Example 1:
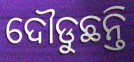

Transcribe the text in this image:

ଦୌଡୁଛନ୍ତି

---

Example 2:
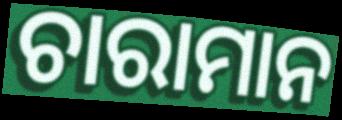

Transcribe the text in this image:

ଚାରାମାନ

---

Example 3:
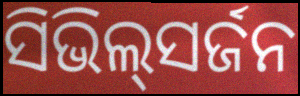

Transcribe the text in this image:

ସିଭିଲ୍‌ସର୍ଜନ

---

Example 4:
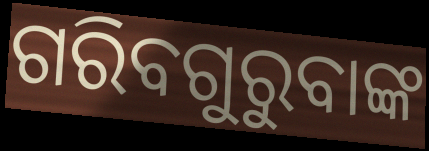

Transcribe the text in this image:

ଗରିବଗୁରୁବାଙ୍କ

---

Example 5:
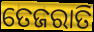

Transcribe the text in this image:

ତେଜରାତି